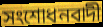
সংশোধনবাদী